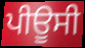
ਪੀਊਸੀ